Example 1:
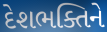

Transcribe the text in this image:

દેશભક્તિને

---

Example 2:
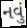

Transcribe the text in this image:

નવું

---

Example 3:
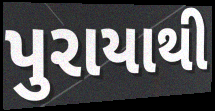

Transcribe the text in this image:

પુરાયાથી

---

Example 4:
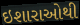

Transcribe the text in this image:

ઇશારાઓથી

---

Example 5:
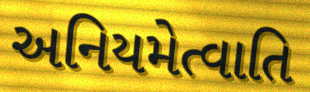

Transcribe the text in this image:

અનિયમેત્વાતિ